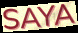
SAYA